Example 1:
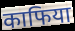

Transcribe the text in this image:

काफिया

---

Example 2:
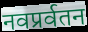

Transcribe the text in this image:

नवप्रर्वतन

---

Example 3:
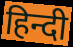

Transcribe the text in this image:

हिन्‍दी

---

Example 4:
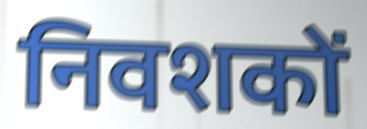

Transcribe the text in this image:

निवशकों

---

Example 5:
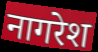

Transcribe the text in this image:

नागरेश